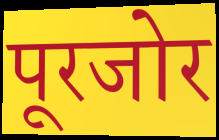
पूरजोर